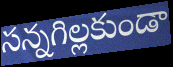
సన్నగిల్లకుండా